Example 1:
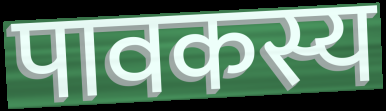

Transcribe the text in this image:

पावकस्य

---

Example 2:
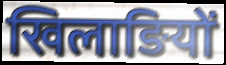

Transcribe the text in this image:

खिलाङियों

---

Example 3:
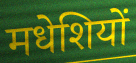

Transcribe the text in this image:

मधेशियों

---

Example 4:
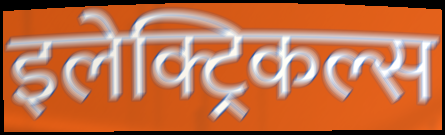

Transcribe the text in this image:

इलेक्ट्रिकल्‍स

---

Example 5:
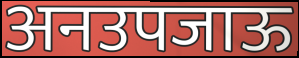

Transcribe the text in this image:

अनउपजाऊ